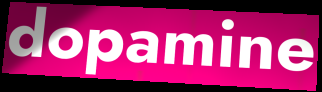
dopamine